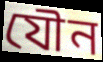
যৌন